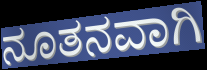
ನೂತನವಾಗಿ